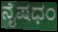
ನೈಷಧಂ